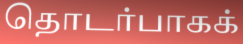
தொடர்பாகக்